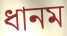
ধানম